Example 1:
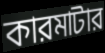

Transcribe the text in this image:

কারমাটার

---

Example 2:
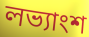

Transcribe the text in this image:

লভ্যাংশ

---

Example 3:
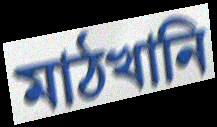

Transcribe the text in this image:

মাঠখানি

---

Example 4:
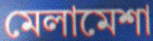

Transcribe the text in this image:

মেলামেশা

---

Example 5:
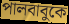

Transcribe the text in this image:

পালবাবুকে